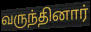
வருந்தினார்